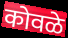
कोवळे